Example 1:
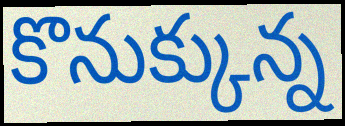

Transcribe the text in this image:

కొనుక్కున్న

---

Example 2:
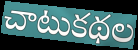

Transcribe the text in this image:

చాటుకథల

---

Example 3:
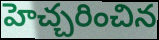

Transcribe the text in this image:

హెచ్చరించిన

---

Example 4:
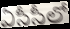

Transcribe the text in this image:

ఏసీసీలో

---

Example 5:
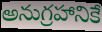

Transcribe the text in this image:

అనుగ్రహానికే